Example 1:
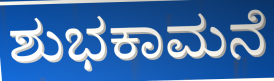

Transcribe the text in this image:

ಶುಭಕಾಮನೆ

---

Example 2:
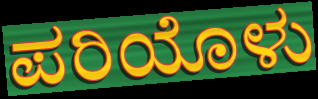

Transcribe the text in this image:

ಪರಿಯೊಳು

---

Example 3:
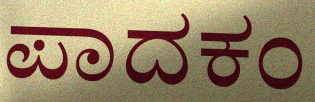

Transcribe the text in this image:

ಪಾದಕಂ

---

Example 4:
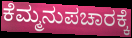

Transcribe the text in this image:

ಕೆಮ್ಮನುಪಚಾರಕ್ಕೆ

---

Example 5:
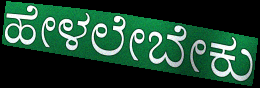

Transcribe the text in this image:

ಹೇಳಲೇಬೇಕು